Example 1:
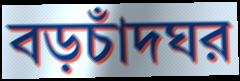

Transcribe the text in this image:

বড়চাঁদঘর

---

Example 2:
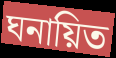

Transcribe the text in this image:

ঘনায়িত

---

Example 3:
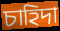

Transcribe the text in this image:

চাহিদা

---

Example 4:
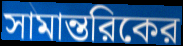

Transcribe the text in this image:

সামান্তরিকের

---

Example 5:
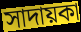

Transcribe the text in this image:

সাদায়কা